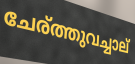
ചേര്ത്തുവച്ചാല്